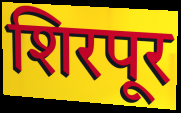
शिरपूर